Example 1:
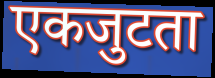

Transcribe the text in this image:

एकजुटता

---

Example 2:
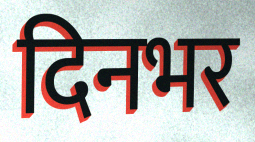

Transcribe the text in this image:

दिनभर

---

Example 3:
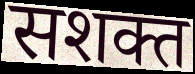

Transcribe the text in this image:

सशक्त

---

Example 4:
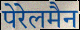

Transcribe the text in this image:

पेरेलमैन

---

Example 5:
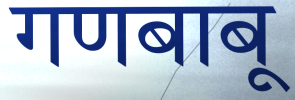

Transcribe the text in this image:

गणबाबू